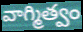
వాగ్మిత్వం